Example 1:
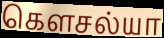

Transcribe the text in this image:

கௌசல்யா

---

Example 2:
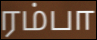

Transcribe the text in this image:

ரம்பா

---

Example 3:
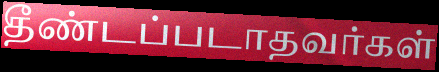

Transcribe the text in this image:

தீண்டப்படாதவர்கள்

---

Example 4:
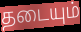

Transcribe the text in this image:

தடையும்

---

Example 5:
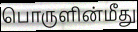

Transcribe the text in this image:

பொருளின்மீது